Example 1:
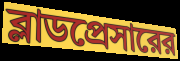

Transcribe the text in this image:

ব্লাডপ্রেসারের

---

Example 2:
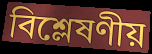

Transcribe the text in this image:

বিশ্লেষণীয়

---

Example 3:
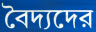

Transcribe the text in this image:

বৈদ্যদের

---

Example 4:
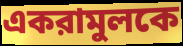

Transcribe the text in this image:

একরামুলকে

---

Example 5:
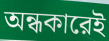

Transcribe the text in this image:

অন্ধকারেই